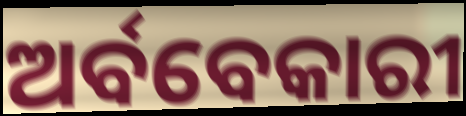
ଅର୍ବବେକାରୀ